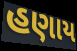
હણાય